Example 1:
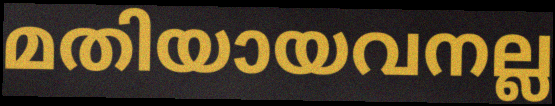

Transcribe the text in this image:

മതിയായവനല്ല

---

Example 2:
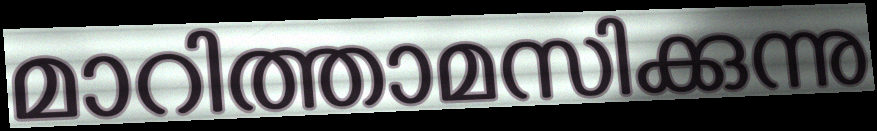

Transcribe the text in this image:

മാറിത്താമസിക്കുന്നു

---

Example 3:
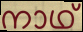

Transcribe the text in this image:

നാഥ്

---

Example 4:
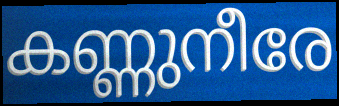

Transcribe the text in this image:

കണ്ണുനീരേ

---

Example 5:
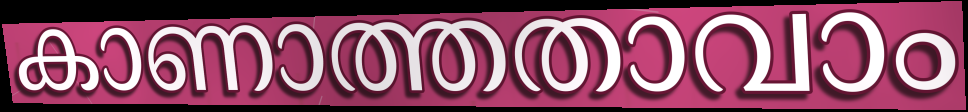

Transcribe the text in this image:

കാണാത്തതാവാം